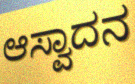
ಆಸ್ವಾದನ